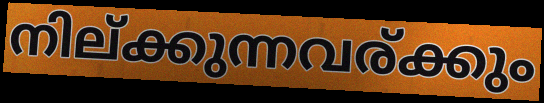
നില്ക്കുന്നവര്ക്കും